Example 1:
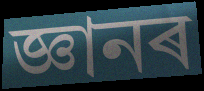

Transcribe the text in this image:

জ্ঞানৰ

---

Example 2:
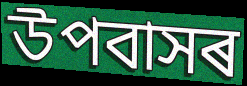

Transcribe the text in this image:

উপবাসৰ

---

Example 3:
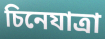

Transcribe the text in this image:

চিনেযাত্ৰা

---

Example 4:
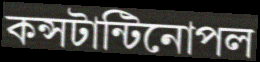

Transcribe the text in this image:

কন্সটান্টিনোপল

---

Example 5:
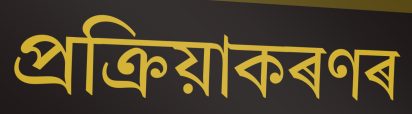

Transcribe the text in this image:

প্ৰক্ৰিয়াকৰণৰ